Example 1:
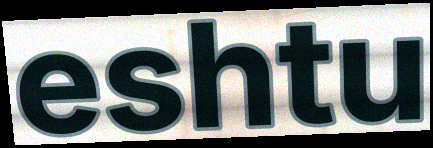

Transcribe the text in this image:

eshtu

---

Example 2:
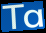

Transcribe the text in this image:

Ta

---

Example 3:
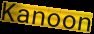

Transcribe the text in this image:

Kanoon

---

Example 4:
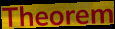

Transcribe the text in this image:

Theorem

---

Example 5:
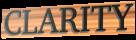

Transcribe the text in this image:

CLARITY